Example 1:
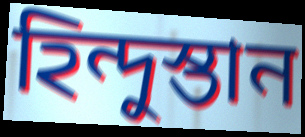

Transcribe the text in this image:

হিন্দুস্তান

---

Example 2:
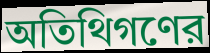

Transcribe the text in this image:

অতিথিগণের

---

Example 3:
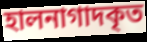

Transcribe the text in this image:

হালনাগাদকৃত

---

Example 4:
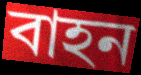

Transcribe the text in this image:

বাহন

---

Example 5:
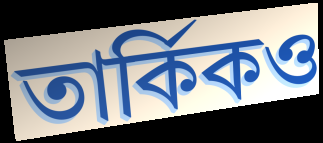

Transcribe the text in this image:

তার্কিকও